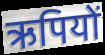
ऋपियों